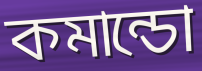
কমান্ডো